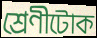
শ্ৰেণীটোক